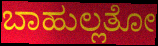
ಬಾಹುಲ್ಲತೋ